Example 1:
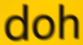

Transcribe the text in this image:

doh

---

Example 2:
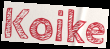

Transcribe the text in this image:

Koike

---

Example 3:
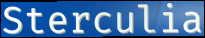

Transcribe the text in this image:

Sterculia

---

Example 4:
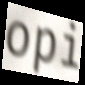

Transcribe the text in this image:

opi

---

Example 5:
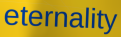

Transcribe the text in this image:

eternality